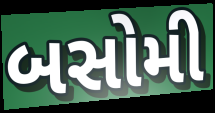
બસોમી